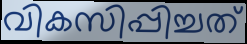
വികസിപ്പിച്ചത്